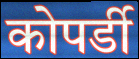
कोपर्डी